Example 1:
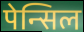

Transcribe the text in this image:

पेन्सिल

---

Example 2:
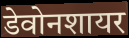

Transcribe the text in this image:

डेवोनशायर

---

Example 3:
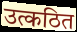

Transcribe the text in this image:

उत्कठित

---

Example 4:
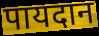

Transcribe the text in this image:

पायदान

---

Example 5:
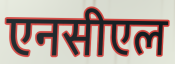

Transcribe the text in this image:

एनसीएल